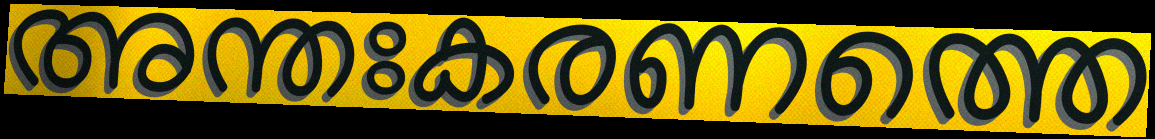
അന്തഃകരണത്തെ